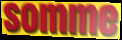
somme